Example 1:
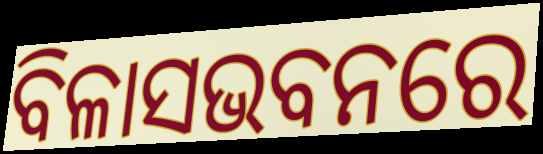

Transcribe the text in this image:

ବିଳାସଭବନରେ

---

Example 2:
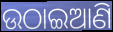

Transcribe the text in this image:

ଉଠାଇଆଣି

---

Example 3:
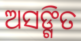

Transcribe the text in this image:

ଅସଙ୍ଗିତ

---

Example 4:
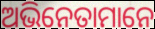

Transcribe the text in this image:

ଅଭିନେତାମାନେ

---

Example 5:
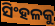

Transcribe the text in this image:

ସିଂହଳକୁ